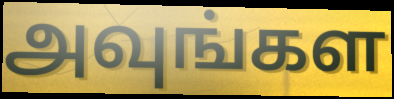
அவுங்கள